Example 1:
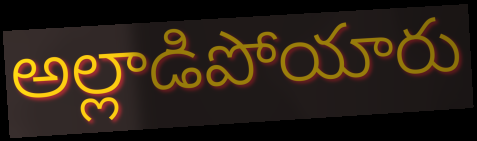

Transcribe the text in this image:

అల్లాడిపోయారు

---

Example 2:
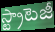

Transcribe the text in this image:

స్ట్రాటెజీ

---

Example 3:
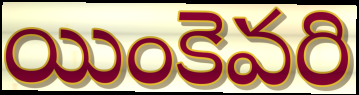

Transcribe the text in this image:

యింకెవరి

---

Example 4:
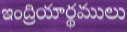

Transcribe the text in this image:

ఇంద్రియార్థములు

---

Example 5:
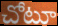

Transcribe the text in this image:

చోటూ